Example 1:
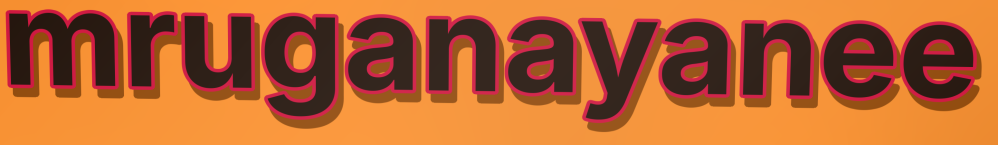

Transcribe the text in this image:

mruganayanee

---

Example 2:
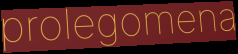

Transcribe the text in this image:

prolegomena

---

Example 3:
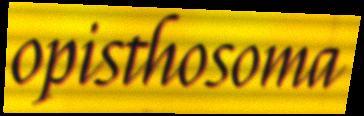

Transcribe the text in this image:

opisthosoma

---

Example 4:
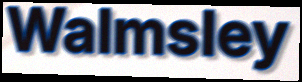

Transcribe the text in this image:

Walmsley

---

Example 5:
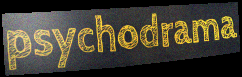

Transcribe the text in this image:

psychodrama